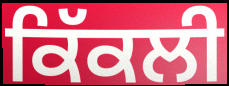
ਕਿੱਕਲੀ